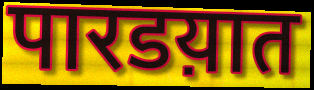
पारडय़ात